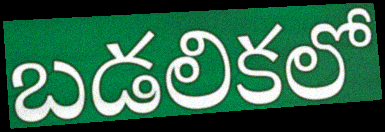
బడలికలో